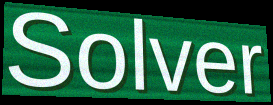
Solver